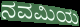
ನವಮಿಯ